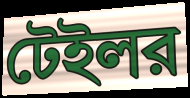
টেইলর